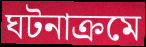
ঘটনাক্রমে